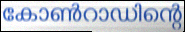
കോൺറാഡിന്റെ